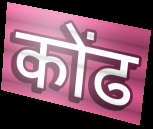
कोंढ